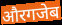
औरगजेब